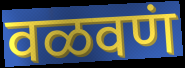
वळवणं